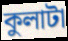
কুলাটা